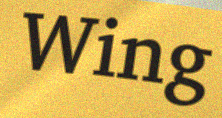
Wing